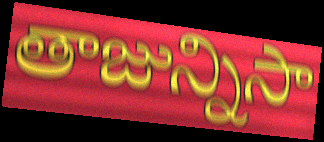
తాజున్నిసా